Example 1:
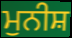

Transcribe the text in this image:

ਮੁਨੀਸ਼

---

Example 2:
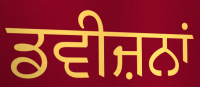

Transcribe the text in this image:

ਡਵੀਜ਼ਨਾਂ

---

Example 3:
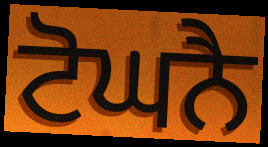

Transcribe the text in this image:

ਟੋਘਨੈ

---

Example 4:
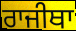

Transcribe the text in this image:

ਰਾਜੀਥਾ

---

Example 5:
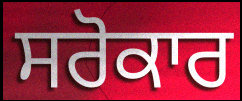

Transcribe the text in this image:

ਸਰੋਕਾਰ